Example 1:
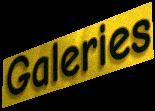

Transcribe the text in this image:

Galeries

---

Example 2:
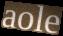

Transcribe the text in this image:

aole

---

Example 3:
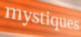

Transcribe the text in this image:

mystiques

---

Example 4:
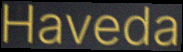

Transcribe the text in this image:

Haveda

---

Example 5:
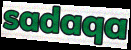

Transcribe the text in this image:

sadaqa